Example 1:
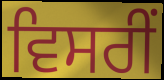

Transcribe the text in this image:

ਵਿਸਰੀਂ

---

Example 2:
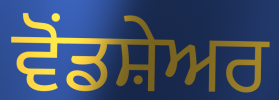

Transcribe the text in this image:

ਵੋਂਡਸ਼ੇਅਰ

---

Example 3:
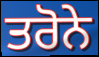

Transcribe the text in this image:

ਤਰੋਨੇ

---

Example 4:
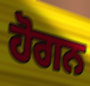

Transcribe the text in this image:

ਹੋਗਨ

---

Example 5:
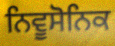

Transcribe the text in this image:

ਨਿਵੂਸੋਨਿਕ